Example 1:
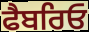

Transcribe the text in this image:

ਫੈਬਰਿਓ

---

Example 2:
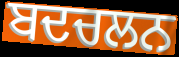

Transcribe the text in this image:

ਬਦਚਲਨ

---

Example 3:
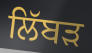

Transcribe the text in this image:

ਲਿੱਬੜ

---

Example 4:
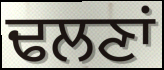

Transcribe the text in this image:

ਢਲਣਾਂ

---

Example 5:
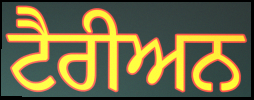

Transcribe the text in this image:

ਟੈਰੀਅਨ